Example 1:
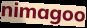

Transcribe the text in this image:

nimagoo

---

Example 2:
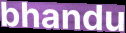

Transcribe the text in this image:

bhandu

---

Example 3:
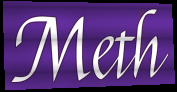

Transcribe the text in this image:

Meth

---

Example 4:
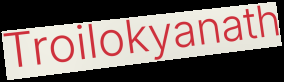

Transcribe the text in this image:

Troilokyanath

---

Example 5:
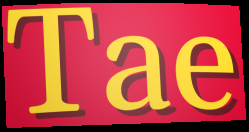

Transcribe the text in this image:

Tae